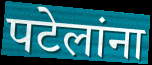
पटेलांना